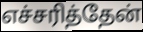
எச்சரித்தேன்